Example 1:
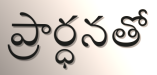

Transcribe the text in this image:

ప్రార్ధనతో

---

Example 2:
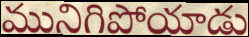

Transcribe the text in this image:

మునిగిపోయాడు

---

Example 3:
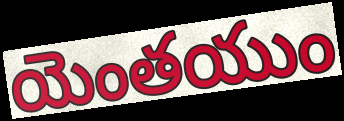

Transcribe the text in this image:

యెంతయుం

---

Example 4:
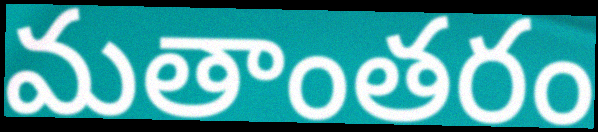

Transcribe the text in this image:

మతాంతరం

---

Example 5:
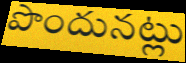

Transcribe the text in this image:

పొందునట్లు